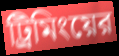
ট্রিমিংয়ের